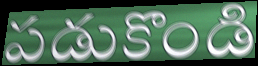
పడుకొండి